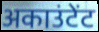
अकाउंटेंट